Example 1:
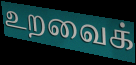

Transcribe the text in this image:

உறவைக்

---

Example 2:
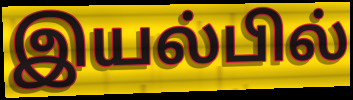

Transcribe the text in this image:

இயல்பில்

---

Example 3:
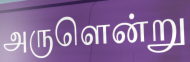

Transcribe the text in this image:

அருளென்று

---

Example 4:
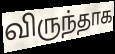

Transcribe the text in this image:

விருந்தாக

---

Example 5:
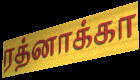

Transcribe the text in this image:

ரத்னாக்கா